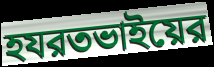
হযরতভাইয়ের